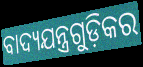
ବାଦ୍ୟଯନ୍ତ୍ରଗୁଡ଼ିକର